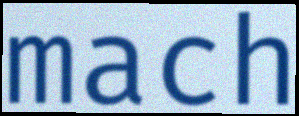
mach